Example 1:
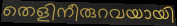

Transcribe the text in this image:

തെളിനീരുറവയായി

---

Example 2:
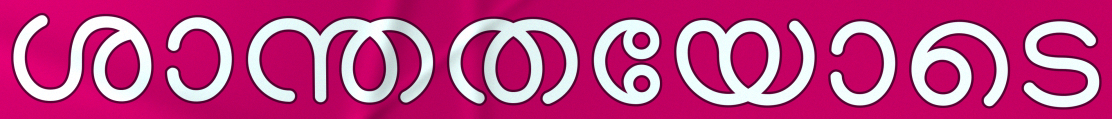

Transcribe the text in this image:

ശാന്തതയോടെ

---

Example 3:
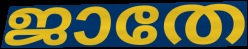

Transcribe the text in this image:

ജാതേ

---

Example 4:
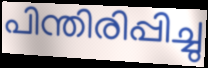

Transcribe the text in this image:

പിന്തിരിപ്പിച്ചു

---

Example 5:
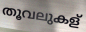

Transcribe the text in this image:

തൂവലുകള്